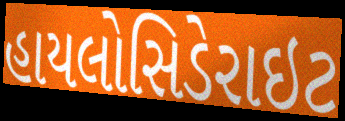
હાયલોસિડેરાઇટ